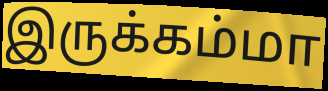
இருக்கம்மா